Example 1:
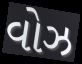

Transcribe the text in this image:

વોઝ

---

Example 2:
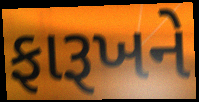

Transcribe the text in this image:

ફારૂખને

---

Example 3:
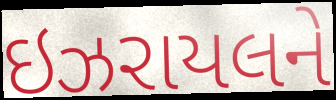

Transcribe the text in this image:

ઇઝરાયલને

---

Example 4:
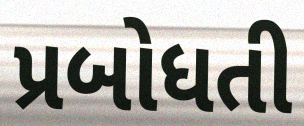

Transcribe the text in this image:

પ્રબોધતી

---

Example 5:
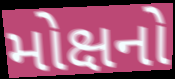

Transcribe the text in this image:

મોક્ષનો